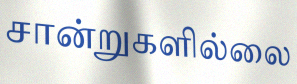
சான்றுகளில்லை